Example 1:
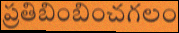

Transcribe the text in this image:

ప్రతిబింబించగలం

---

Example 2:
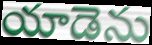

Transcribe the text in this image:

యాడెను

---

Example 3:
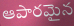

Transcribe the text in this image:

ఆపారమైన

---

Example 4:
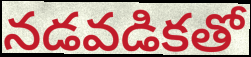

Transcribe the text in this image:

నడవడికతో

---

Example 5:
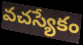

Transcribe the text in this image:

వచస్యేకం